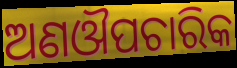
ଅଣଔପଚାରିକ